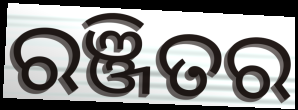
ରଞ୍ଜିତର